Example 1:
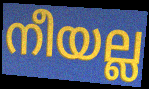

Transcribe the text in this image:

നീയല്ല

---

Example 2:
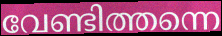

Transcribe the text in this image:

വേണ്ടിത്തന്നെ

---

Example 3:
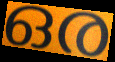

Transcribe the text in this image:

ഒര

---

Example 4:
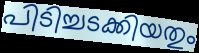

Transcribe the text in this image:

പിടിച്ചടക്കിയതും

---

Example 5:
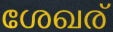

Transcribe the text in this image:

ശേഖര്